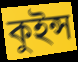
কুইন্স